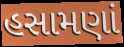
હસામણાં